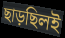
ছাড়ছিলই